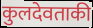
कुलदेवताकी